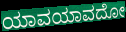
ಯಾವಯಾವದೋ